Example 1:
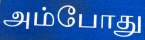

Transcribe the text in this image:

அம்போது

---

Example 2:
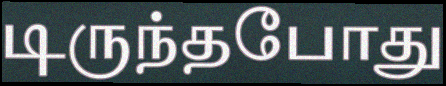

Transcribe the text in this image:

டிருந்தபோது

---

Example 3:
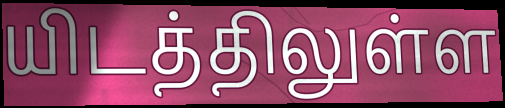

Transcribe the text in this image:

யிடத்திலுள்ள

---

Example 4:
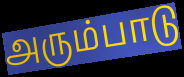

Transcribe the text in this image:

அரும்பாடு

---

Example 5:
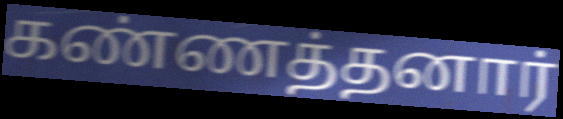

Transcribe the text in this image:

கண்ணத்தனார்